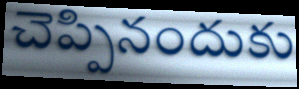
చెప్పినందుకు